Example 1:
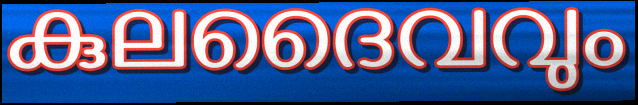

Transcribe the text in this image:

കുലദൈവവും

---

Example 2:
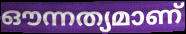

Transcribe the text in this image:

ഔന്നത്യമാണ്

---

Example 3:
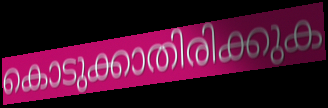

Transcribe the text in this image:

കൊടുക്കാതിരിക്കുക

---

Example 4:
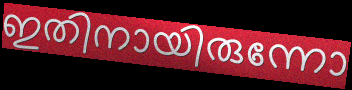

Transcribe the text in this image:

ഇതിനായിരുന്നോ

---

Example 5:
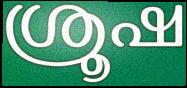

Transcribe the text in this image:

ശ്രൂഷ